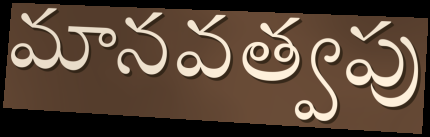
మానవత్వపు